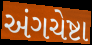
અંગચેષ્ટા